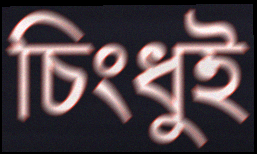
চিংধুই